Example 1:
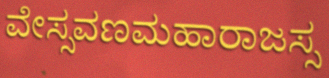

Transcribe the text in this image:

ವೇಸ್ಸವಣಮಹಾರಾಜಸ್ಸ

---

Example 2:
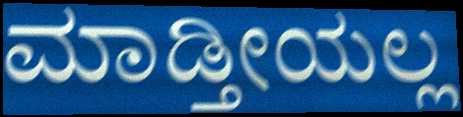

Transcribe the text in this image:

ಮಾಡ್ತೀಯಲ್ಲ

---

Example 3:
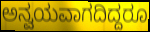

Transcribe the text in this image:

ಅನ್ವಯವಾಗದಿದ್ದರೂ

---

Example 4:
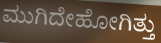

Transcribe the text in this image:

ಮುಗಿದೇಹೋಗಿತ್ತು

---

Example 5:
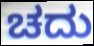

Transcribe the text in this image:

ಚದು